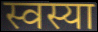
स्वस्या